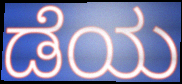
ಡೆಯ